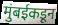
मुंबईकडून